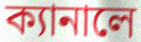
ক্যানালে